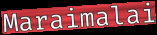
Maraimalai